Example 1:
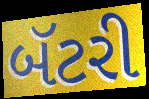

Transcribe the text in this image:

બૅટરી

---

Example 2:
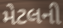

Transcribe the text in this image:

મેટલની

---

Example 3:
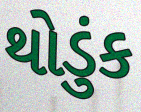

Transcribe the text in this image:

થોડુંક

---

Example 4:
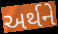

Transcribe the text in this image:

અર્થને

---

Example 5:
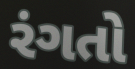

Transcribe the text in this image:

રંગતો